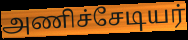
அணிச்சேடியர்